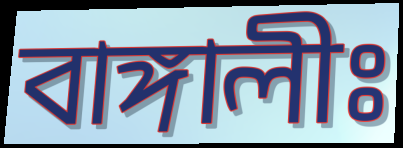
বাঙ্গালীঃ